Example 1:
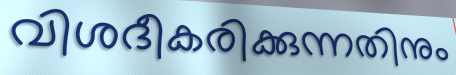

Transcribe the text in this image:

വിശദീകരിക്കുന്നതിനും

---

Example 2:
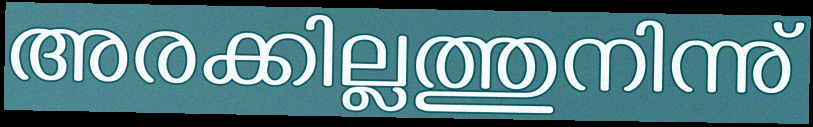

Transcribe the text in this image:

അരക്കില്ലത്തുനിന്നു്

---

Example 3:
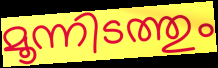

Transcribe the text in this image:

മൂന്നിടത്തും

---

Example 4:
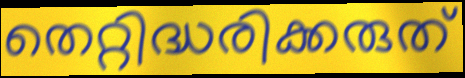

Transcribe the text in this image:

തെറ്റിദ്ധരിക്കരുത്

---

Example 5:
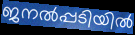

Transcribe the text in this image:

ജനൽപ്പടിയിൽ